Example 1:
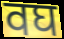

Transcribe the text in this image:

वघ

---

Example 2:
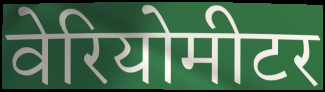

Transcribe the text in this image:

वेरियोमीटर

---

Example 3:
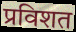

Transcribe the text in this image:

प्रविशत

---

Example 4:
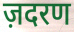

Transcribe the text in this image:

ज़दरण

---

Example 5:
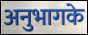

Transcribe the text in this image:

अनुभागके